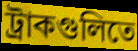
ট্রাকগুলিতে